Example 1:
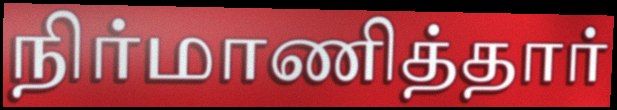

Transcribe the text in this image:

நிர்மாணித்தார்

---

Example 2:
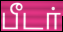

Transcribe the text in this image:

பீடர்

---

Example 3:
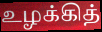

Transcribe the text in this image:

உழக்கித்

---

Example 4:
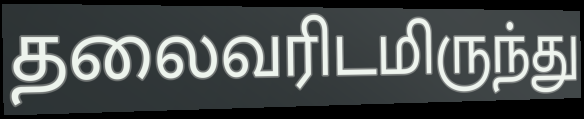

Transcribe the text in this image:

தலைவரிடமிருந்து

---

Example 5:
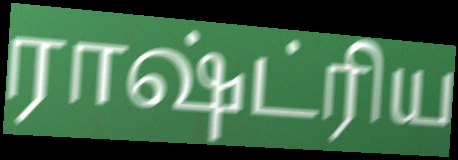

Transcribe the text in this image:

ராஷ்ட்ரிய